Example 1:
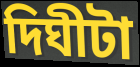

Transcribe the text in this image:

দিঘীটা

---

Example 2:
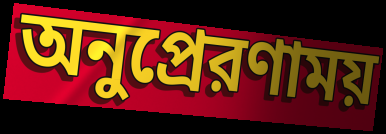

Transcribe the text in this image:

অনুপ্রেরণাময়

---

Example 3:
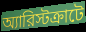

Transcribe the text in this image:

অ্যারিস্টক্রাটে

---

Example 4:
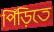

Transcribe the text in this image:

পিঁড়িতে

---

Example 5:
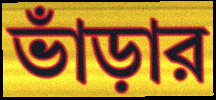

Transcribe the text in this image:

ভাঁড়ার